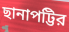
ছানাপট্টির